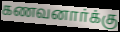
கணவனார்க்கு